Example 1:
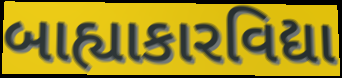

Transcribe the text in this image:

બાહ્યાકારવિદ્યા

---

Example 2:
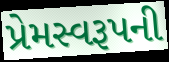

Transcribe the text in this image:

પ્રેમસ્વરૂપની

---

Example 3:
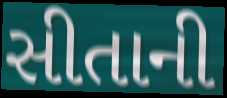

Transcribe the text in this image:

સીતાની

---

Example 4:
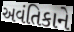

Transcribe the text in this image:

અવંતિકાને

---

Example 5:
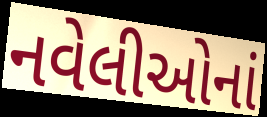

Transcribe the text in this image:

નવેલીઓનાં